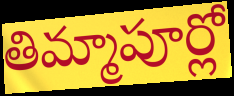
తిమ్మాపూర్లో